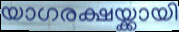
യാഗരക്ഷയ്ക്കായി